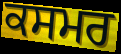
ਕਸਮਰ